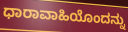
ಧಾರಾವಾಹಿಯೊಂದನ್ನು